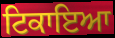
ਟਿਕਾਇਆ